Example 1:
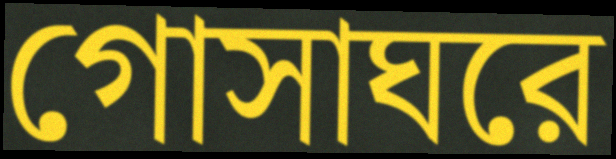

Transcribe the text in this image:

গোসাঘরে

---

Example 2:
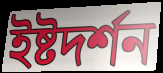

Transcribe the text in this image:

ইষ্টদর্শন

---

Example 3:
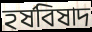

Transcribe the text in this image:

হর্ষবিষাদ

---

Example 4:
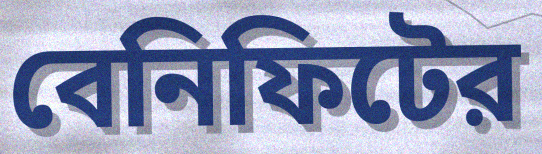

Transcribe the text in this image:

বেনিফিটের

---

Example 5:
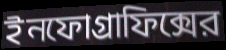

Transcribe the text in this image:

ইনফোগ্রাফিক্সের